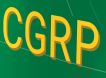
CGRP